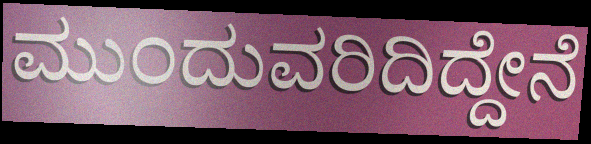
ಮುಂದುವರಿದಿದ್ದೇನೆ